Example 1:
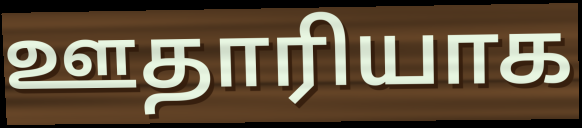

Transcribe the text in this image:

ஊதாரியாக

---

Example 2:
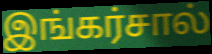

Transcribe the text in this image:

இங்கர்சால்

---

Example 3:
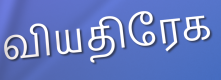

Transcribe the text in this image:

வியதிரேக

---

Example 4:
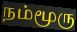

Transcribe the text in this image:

நம்மூரு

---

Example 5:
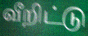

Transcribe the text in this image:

வீறிட்டு